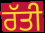
ਰੱਤੀ